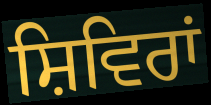
ਸ਼ਿਵਿਰਾਂ